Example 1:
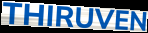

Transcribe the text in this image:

THIRUVEN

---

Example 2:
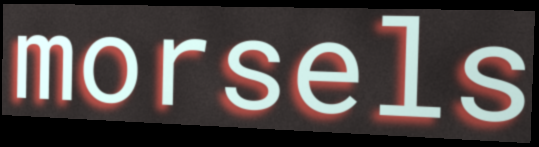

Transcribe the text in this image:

morsels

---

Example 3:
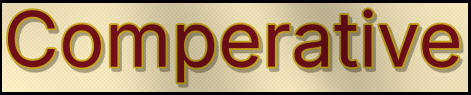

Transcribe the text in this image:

Comperative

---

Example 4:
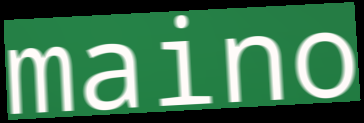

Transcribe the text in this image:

maino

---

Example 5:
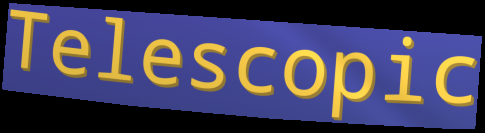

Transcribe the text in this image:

Telescopic